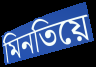
মিনতিয়ে